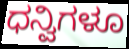
ಧನ್ವಿಗಳೂ